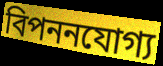
বিপননযোগ্য